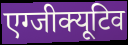
एग्जीक्यूटिव